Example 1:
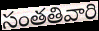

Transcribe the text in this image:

సంతతివారి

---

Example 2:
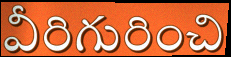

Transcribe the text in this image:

వీరిగురించి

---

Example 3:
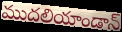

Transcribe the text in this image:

ముదలియాండాన్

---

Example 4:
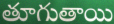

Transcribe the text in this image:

తూగుతాయి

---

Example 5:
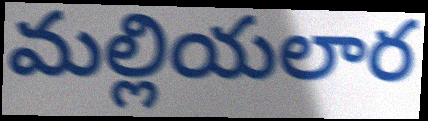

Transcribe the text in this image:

మల్లియలార